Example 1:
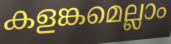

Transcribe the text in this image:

കളങ്കമെല്ലാം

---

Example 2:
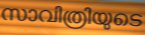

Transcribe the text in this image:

സാവിത്രിയുടെ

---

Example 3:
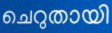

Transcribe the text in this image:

ചെറുതായി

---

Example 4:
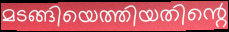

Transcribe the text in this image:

മടങ്ങിയെത്തിയതിന്റെ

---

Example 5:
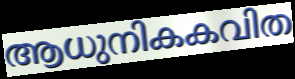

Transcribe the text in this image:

ആധുനികകവിത